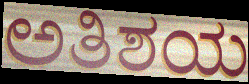
ಅತಿಶಯ